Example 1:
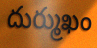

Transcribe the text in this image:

దుర్ముఖం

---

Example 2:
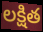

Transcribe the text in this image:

లక్షిత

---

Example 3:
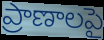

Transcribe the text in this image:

ప్రాణాలపై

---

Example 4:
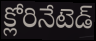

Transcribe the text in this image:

క్లోరినేటెడ్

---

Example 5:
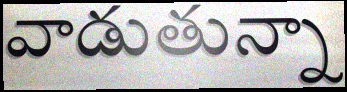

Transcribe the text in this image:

వాడుతున్నా